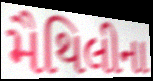
મૈથિલીના